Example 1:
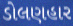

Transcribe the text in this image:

ડોલણહાર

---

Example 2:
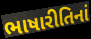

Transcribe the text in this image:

ભાષારીતિનાં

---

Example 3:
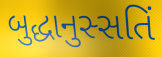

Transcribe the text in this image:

બુદ્ધાનુસ્સતિં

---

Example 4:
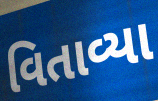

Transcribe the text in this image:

વિતાવ્યા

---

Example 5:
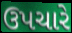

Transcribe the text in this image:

ઉપચારે